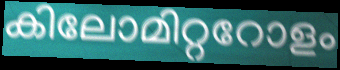
കിലോമിറ്ററോളം